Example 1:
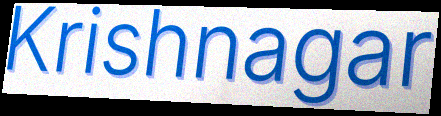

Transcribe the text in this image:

Krishnagar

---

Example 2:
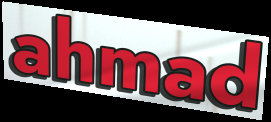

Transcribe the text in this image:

ahmad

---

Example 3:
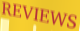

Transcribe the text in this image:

REVIEWS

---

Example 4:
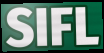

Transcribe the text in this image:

SIFL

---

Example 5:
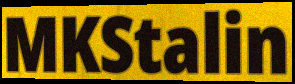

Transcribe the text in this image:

MKStalin